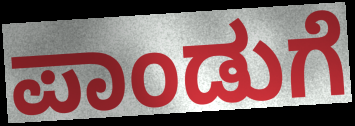
ಪಾಂಡುಗೆ